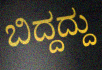
ಬಿದ್ದದ್ದು